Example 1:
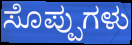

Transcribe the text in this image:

ಸೊಪ್ಪುಗಳು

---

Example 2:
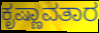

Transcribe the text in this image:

ಕೃಷ್ಣಾವತಾರ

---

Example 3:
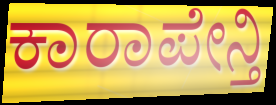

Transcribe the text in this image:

ಕಾರಾಪೇನ್ತಿ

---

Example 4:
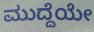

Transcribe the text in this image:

ಮುದ್ದೆಯೇ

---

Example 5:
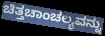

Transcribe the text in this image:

ಚಿತ್ತಚಾಂಚಲ್ಯವನ್ನು